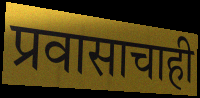
प्रवासाचाही